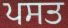
ਪਸਤ